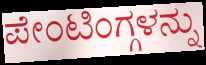
ಪೇಂಟಿಂಗ್ಗಳನ್ನು